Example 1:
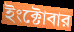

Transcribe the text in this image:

ইংক্টোবার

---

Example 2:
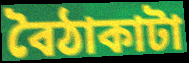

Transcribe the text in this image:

বৈঠাকাটা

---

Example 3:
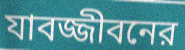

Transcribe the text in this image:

যাবজ্জীবনের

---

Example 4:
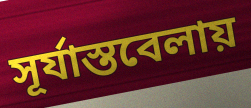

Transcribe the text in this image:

সূর্যাস্তবেলায়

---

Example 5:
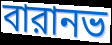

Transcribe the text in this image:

বারানভ